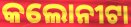
କଲୋନୀଟା